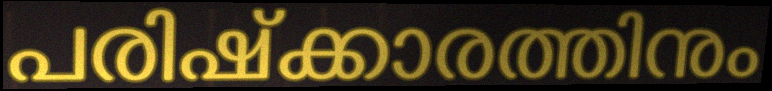
പരിഷ്ക്കാരത്തിനും